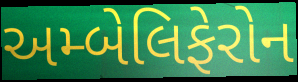
અમ્બેલિફેરોન